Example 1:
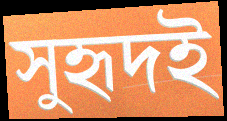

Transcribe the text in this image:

সুহৃদই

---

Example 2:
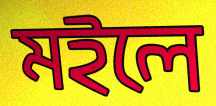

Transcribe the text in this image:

মইলে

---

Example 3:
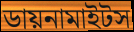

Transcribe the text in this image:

ডায়নামাইটস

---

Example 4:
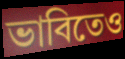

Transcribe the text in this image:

ভাবিতেও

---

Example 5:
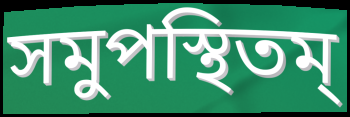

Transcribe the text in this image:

সমুপস্থিতম্